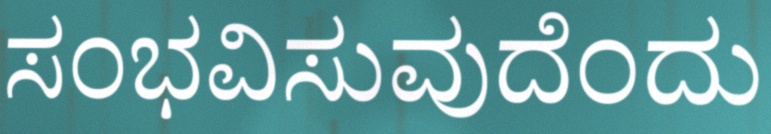
ಸಂಭವಿಸುವುದೆಂದು